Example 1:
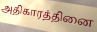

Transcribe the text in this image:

அதிகாரத்தினை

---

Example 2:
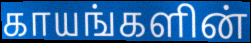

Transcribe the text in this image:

காயங்களின்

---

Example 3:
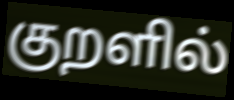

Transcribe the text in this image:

குறளில்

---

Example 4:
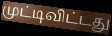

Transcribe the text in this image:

முட்டிவிட்டது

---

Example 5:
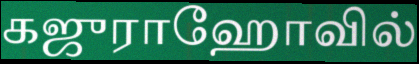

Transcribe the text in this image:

கஜுராஹோவில்